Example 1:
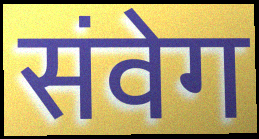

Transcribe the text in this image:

संवेग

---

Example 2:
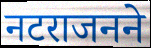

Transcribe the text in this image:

नटराजनने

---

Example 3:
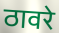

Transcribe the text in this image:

ठावरे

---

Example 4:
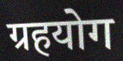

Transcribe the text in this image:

ग्रहयोग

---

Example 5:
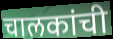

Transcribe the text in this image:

चालकांची